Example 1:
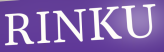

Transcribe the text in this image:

RINKU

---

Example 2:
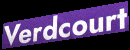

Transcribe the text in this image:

Verdcourt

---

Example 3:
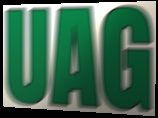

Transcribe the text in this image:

UAG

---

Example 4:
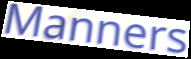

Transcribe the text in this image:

Manners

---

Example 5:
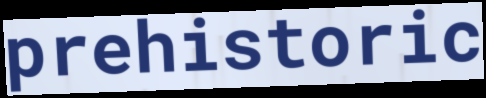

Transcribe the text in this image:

prehistoric